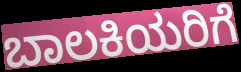
ಬಾಲಕಿಯರಿಗೆ